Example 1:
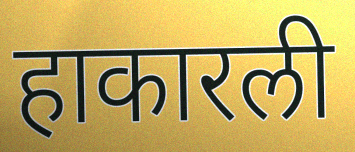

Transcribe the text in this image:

हाकारली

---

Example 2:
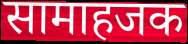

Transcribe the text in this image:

सामाहजक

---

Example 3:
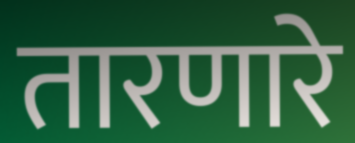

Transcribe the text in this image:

तारणारे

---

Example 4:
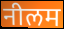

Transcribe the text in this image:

नीलम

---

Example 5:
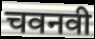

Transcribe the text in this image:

चवनवी